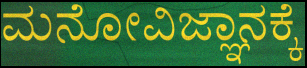
ಮನೋವಿಜ್ಞಾನಕ್ಕೆ